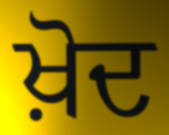
ਖ਼ੋਦ